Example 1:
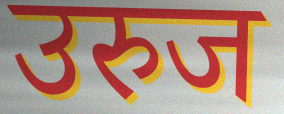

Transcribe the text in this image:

उरुज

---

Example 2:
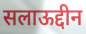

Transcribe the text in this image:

सलाऊद्दीन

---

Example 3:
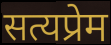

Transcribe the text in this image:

सत्यप्रेम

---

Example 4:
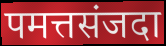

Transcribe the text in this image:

पमत्तसंजदा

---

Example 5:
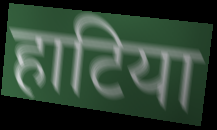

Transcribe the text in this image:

हाटिया